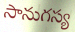
సానుగస్య